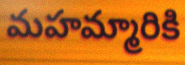
మహమ్మారికి